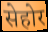
सेहोर